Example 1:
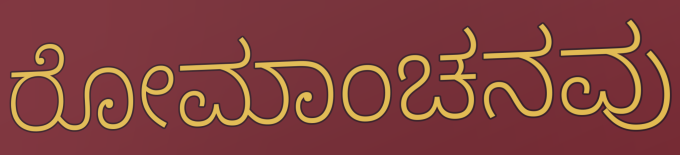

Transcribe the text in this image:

ರೋಮಾಂಚನವು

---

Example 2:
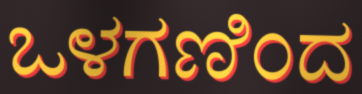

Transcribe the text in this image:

ಒಳಗಣಿಂದ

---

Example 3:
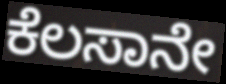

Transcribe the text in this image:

ಕೆಲಸಾನೇ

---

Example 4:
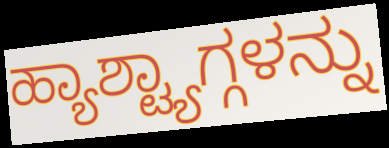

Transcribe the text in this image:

ಹ್ಯಾಶ್ಟ್ಯಾಗ್ಗಳನ್ನು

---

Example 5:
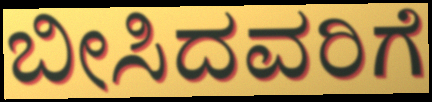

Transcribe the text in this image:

ಬೀಸಿದವರಿಗೆ